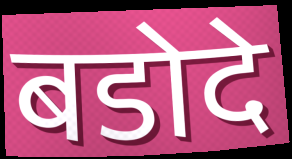
बडोदे